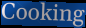
Cooking